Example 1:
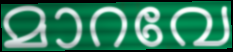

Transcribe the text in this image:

മാറവേ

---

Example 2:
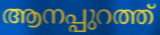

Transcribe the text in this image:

ആനപ്പുറത്ത്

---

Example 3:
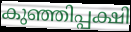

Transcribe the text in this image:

കുഞ്ഞിപ്പക്ഷി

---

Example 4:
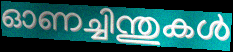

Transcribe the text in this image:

ഓണച്ചിന്തുകൾ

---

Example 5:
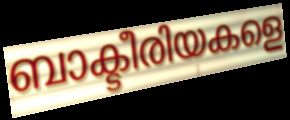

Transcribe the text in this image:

ബാക്ടീരിയകളെ